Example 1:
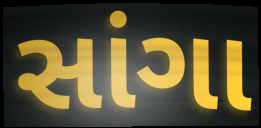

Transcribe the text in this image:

સાંગા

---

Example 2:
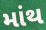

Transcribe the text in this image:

માંથ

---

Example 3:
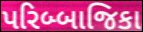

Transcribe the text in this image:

પરિબ્બાજિકા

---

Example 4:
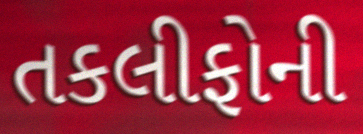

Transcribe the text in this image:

તકલીફોની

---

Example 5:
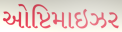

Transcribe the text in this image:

ઓપ્ટિમાઇઝર